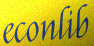
econlib